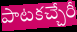
పాటకచ్చేరీ